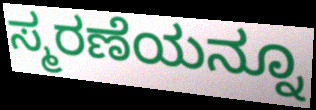
ಸ್ಮರಣೆಯನ್ನೂ